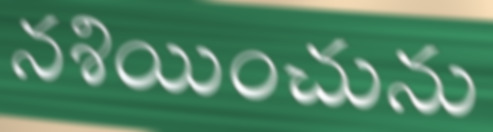
నశియించును